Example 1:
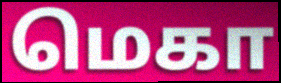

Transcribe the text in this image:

மெகா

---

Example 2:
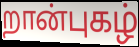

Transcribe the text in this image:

றான்புகழ்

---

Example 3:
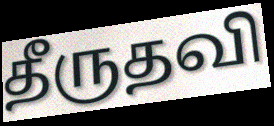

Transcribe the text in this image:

தீருதவி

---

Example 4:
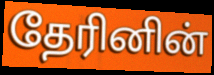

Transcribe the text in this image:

தேரினின்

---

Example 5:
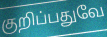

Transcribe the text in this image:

குறிப்பதுவே